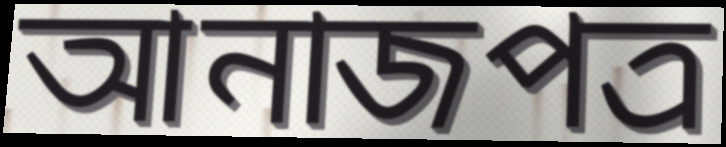
আনাজপত্র